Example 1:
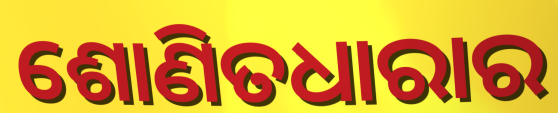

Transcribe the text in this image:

ଶୋଣିତଧାରାର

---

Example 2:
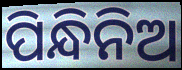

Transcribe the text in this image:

ପିନ୍ଧିନିଅ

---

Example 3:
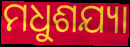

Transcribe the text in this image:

ମଧୁଶଯ୍ୟା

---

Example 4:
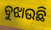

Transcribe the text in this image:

ବୁଝାଉଛି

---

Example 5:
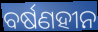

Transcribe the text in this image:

ବର୍ଷଣହୀନ